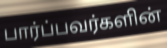
பார்ப்பவர்களின்